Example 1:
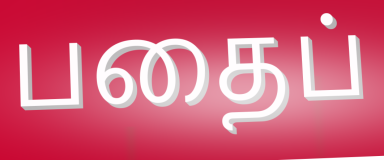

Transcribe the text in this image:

பதைப்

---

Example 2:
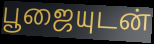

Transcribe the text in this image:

பூஜையுடன்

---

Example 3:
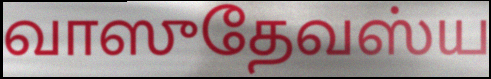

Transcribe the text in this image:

வாஸுதேவஸ்ய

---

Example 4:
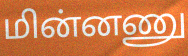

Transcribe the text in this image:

மின்னணு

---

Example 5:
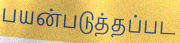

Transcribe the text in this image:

பயன்படுத்தப்பட